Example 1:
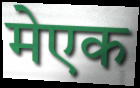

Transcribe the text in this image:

मेएक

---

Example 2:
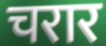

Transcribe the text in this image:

चरार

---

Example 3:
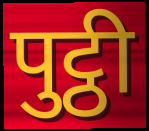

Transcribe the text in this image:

पुट्ठी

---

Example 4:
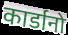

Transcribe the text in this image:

कार्डानो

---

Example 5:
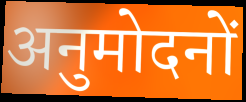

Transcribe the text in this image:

अनुमोदनों